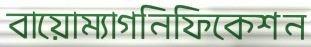
বায়োম্যাগনিফিকেশন